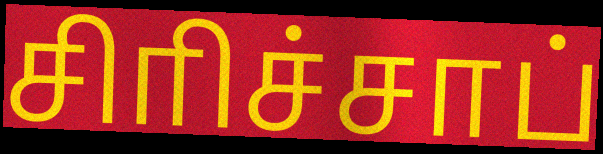
சிரிச்சாப்